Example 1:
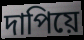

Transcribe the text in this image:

দাপিয়ে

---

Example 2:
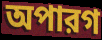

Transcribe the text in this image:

অপারগ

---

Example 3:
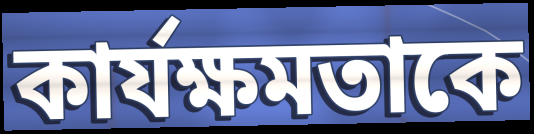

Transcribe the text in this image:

কার্যক্ষমতাকে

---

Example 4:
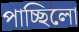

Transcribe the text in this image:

পাচ্ছিলো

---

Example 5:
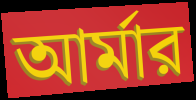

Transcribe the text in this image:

আর্মার